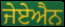
ਜੇਏਐਨ